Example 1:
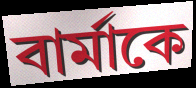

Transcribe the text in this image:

বার্মাকে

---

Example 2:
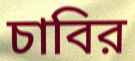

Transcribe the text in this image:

চাবির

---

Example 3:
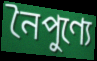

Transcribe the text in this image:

নৈপুণ্যে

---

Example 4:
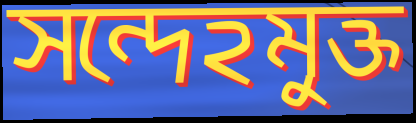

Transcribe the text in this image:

সন্দেহমুক্ত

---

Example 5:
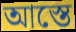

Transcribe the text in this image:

আস্তে